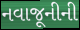
નવાજૂનીની